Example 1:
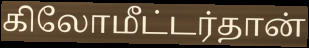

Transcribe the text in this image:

கிலோமீட்டர்தான்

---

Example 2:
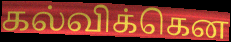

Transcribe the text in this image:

கல்விக்கென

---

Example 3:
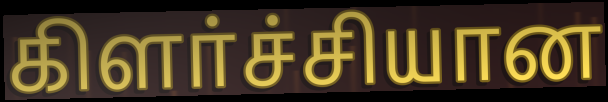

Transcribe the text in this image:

கிளர்ச்சியான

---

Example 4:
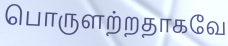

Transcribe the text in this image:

பொருளற்றதாகவே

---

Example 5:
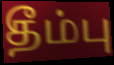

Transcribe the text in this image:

தீம்பு